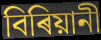
বিৰিয়ানী